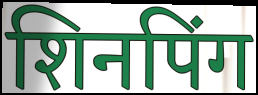
शिनपिंग